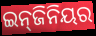
ଇନ୍‌ଜିନିୟର